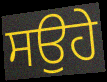
ਸਉਹੇ